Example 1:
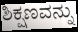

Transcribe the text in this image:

ಶಿಕ್ಷಣವನ್ನು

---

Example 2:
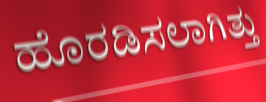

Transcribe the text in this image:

ಹೊರಡಿಸಲಾಗಿತ್ತು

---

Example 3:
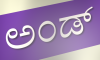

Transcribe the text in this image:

ಅಂಡ್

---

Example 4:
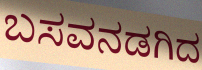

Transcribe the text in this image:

ಬಸವನಡಗಿದ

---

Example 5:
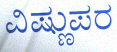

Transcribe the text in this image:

ವಿಷ್ಣುಪರ